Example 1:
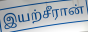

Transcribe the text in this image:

இயற்சீரான்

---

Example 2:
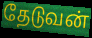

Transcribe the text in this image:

தேடுவன்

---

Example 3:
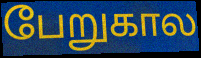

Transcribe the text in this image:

பேறுகால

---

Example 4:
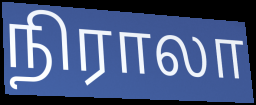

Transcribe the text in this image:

நிராலா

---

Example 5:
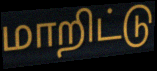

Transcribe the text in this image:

மாறிட்டு